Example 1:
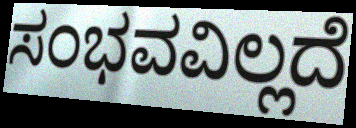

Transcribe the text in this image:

ಸಂಭವವಿಲ್ಲದೆ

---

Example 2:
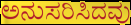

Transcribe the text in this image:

ಅನುಸರಿಸಿದವು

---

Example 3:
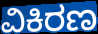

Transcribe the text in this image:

ವಿಕಿರಣ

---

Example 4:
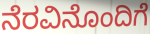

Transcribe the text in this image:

ನೆರವಿನೊಂದಿಗೆ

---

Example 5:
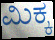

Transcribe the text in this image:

ಮಿಕ್ಕ